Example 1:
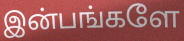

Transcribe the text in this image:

இன்பங்களே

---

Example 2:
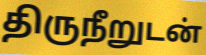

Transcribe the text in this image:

திருநீறுடன்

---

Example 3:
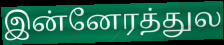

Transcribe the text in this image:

இன்னேரத்துல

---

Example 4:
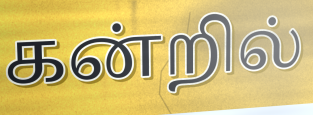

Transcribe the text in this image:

கன்றில்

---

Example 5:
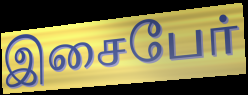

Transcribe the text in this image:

இசைபேர்